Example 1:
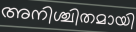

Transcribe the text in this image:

അനിശ്ചിതമായി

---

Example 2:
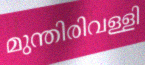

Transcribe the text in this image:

മുന്തിരിവള്ളി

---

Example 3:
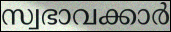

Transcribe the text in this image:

സ്വഭാവക്കാർ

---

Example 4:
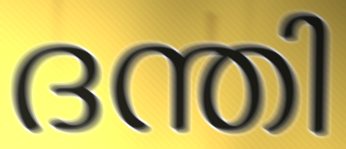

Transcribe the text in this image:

ദന്തി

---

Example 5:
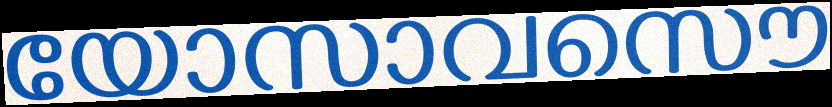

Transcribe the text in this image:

യോസാവസൌ